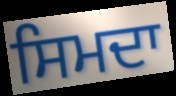
ਸਿਮਦਾ